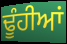
ਢੂੰਹੀਆਂ